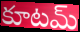
కూటమ్